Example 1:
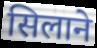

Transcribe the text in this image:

सिलाने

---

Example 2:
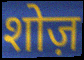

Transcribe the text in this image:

शोज़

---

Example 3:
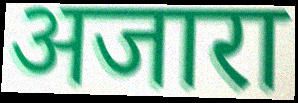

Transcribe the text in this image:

अजारा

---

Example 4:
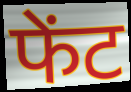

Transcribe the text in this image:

फेंट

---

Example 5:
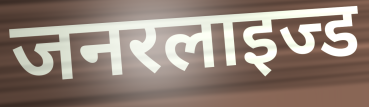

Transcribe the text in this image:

जनरलाइज्ड